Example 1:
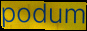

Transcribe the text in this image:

podum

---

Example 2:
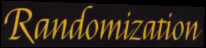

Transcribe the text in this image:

Randomization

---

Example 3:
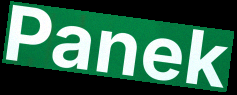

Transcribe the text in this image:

Panek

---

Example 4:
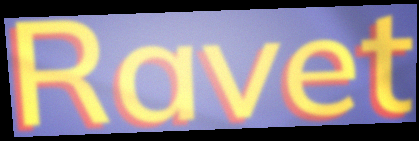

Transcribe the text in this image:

Ravet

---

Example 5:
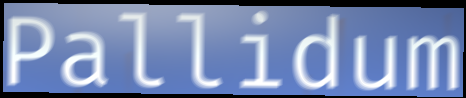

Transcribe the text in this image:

Pallidum